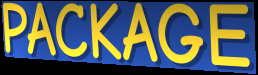
PACKAGE